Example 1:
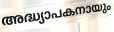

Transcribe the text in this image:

അദ്ധ്യാപകനായും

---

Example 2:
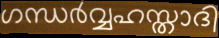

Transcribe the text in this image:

ഗന്ധർവ്വഹസ്താദി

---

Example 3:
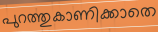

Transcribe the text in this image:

പുറത്തുകാണിക്കാതെ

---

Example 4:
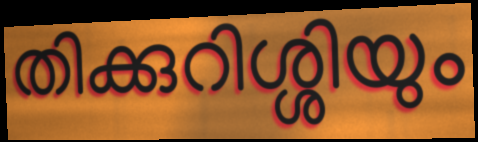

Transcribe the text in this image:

തിക്കുറിശ്ശിയും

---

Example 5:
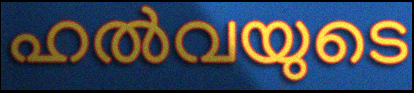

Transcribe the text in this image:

ഹൽവയുടെ